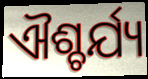
ଐଶ୍ଚର୍ଯ୍ୟ